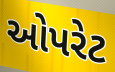
ઓપરેટ